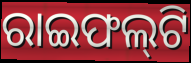
ରାଇଫଲ୍‌ଟି